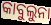
କାବୁଲୁନା